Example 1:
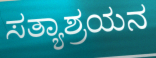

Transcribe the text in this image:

ಸತ್ಯಾಶ್ರಯನ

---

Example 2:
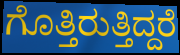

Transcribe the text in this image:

ಗೊತ್ತಿರುತ್ತಿದ್ದರೆ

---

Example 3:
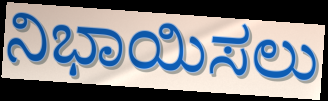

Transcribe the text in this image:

ನಿಭಾಯಿಸಲು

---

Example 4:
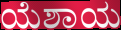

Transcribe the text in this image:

ಯೆಶಾಯ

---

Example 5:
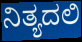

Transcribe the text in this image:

ನಿತ್ಯದಲಿ